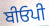
ਬੀਓਪੀ